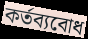
কর্তব্যবোধ